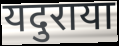
यदुराया